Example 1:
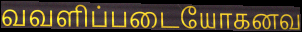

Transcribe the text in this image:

வவளிப்படையோகனவ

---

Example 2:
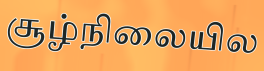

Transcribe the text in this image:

சூழ்நிலையில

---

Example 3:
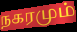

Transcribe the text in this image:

நகரமும்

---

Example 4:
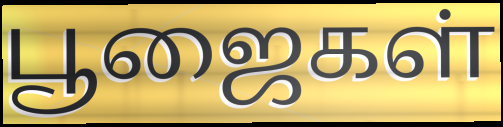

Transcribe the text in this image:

பூஜைகள்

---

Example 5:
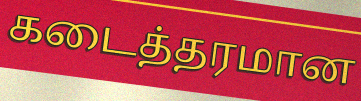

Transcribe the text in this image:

கடைத்தரமான